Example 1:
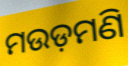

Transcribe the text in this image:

ମଉଡ଼ମଣି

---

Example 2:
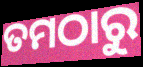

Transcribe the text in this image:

ତମଠାରୁ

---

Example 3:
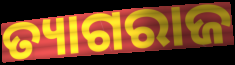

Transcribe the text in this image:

ତ୍ୟାଗରାଜ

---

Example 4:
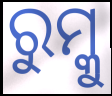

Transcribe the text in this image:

ରୁମ୍କୁ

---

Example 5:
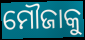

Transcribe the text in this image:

ମୌଜାକୁ